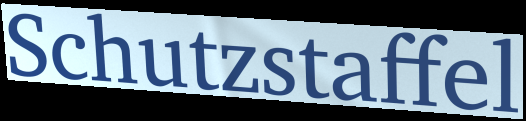
Schutzstaffel